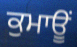
ਕੁਮਾਊਂ